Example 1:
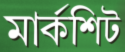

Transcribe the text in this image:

মার্কশিট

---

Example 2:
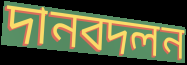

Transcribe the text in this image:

দানবদলন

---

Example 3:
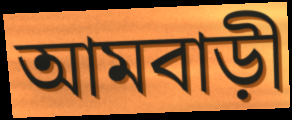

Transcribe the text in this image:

আমবাড়ী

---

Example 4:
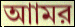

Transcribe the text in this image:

আামর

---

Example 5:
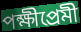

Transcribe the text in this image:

পক্ষীপ্রেমী